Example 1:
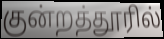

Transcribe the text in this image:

குன்றத்தூரில்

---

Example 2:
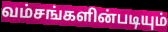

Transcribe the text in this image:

வம்சங்களின்படியும்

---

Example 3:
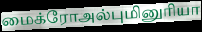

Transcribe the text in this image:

மைக்ரோஅல்புமினுரியா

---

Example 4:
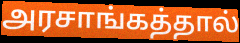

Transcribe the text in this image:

அரசாங்கத்தால்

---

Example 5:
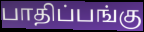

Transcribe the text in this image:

பாதிப்பங்கு